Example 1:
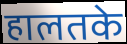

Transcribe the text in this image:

हालतके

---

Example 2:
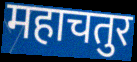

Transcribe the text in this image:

महाचतुर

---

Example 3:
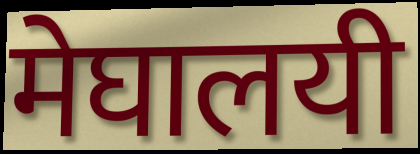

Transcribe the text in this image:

मेघालयी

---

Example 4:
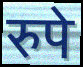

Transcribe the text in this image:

रुपे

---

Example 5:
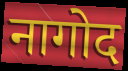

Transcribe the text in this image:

नागोद